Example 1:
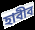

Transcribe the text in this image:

হাবীব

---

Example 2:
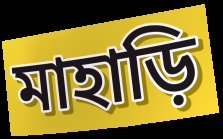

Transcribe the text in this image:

মাহাড়ি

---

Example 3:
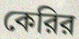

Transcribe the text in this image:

কেরির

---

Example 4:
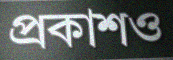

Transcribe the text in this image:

প্রকাশও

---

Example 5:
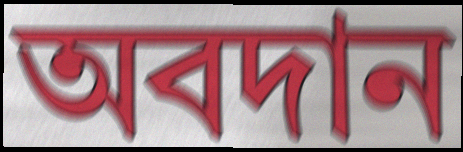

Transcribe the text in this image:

অবদান